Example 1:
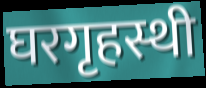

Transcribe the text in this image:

घरगृहस्थी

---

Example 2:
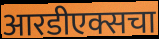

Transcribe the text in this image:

आरडीएक्सचा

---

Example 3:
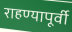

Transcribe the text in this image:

राहण्यापूर्वी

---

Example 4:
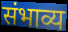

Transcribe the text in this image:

संभाव्य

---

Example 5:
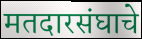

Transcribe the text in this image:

मतदारसंघाचे